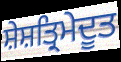
ਸ਼ੇਸ਼ਤ੍ਰਿਮੇਦੂਤ